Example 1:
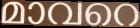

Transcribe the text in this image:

മാവറെ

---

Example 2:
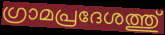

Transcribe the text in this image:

ഗ്രാമപ്രദേശത്തു്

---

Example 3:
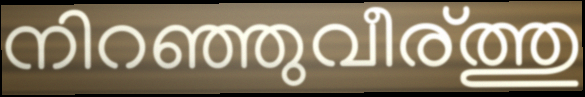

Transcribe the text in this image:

നിറഞ്ഞുവീര്ത്തു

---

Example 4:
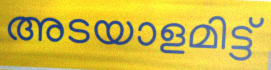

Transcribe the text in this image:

അടയാളമിട്ട്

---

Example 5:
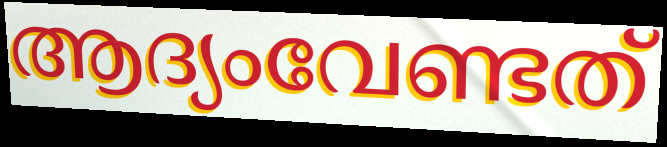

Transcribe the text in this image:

ആദ്യംവേണ്ടത്